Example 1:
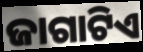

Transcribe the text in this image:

ଜାଗାଟିଏ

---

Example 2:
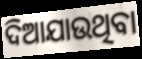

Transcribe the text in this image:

ଦିଆଯାଉଥିବା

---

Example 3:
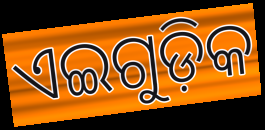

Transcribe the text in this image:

ଏଇଗୁଡ଼ିକ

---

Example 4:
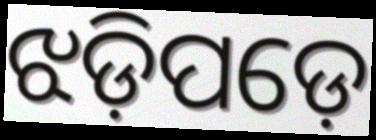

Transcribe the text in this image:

ଝଡ଼ିପଡ଼େ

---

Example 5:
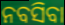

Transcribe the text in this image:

ନବସିବା